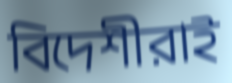
বিদেশীরাই